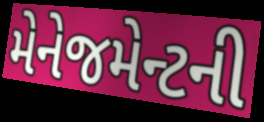
મેનેજમેન્ટની